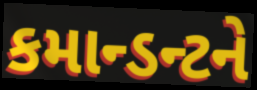
કમાન્ડન્ટને